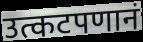
उत्कटपणानं